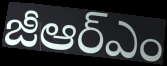
జీఆర్ఎం